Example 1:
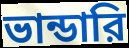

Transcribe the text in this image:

ভান্ডারি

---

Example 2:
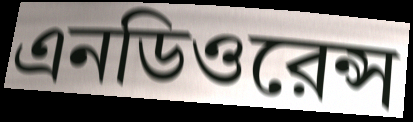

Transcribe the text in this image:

এনডিওরেন্স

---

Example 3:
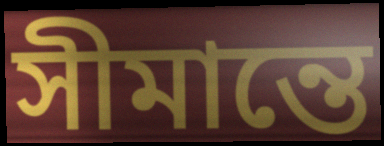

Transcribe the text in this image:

সীমান্তে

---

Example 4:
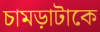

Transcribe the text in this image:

চামড়াটাকে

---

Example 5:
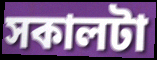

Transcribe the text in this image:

সকালটা